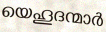
യെഹൂദന്മാർ